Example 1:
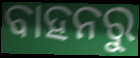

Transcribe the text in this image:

ବାହନରୁ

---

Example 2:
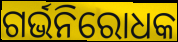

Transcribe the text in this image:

ଗର୍ଭନିରୋଧକ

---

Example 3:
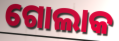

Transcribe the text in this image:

ଗୋଲାକ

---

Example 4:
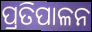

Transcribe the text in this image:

ପ୍ରତିପାଳନ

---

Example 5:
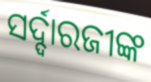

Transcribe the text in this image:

ସର୍ଦ୍ଦାରଜୀଙ୍କ